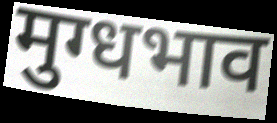
मुग्धभाव